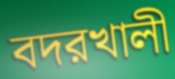
বদরখালী